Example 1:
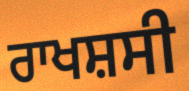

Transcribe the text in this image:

ਰਾਖਸ਼ਸੀ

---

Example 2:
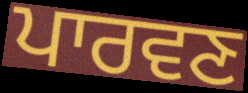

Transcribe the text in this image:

ਪਾਰਵਣ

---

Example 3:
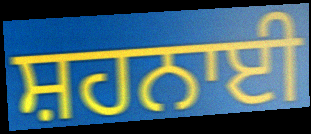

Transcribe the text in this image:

ਸ਼ਹਨਾਈ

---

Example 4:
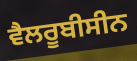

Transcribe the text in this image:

ਵੈਲਰੂਬੀਸੀਨ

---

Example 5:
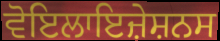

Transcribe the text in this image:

ਵੋਇਲਾਇਜ਼ੇਸ਼ਨਸ